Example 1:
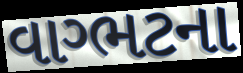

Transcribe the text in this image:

વાગ્ભટના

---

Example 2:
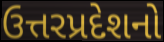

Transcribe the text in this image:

ઉત્તરપ્રદેશનો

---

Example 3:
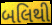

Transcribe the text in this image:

બલિથી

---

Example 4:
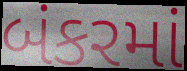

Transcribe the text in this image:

બંકરમાં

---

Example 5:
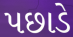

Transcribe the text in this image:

પછાડે